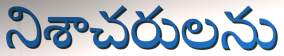
నిశాచరులను